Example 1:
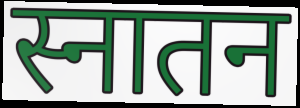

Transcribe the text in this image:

स्नातन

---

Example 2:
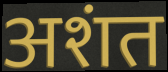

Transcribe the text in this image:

अशंत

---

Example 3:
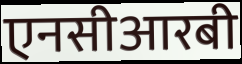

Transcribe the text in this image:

एनसीआरबी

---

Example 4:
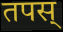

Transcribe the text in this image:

तपस्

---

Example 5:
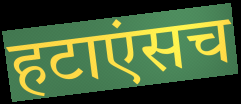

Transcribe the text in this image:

हटाएंसच